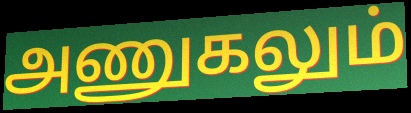
அணுகலும்